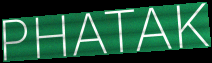
PHATAK